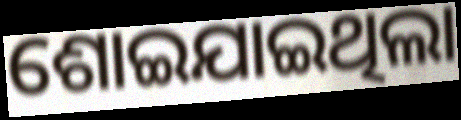
ଶୋଇଯାଇଥିଲା